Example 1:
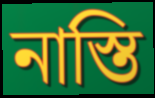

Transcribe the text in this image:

নাস্তি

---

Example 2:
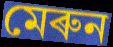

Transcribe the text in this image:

মেৰুন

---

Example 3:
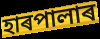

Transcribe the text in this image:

হাৰপালাৰ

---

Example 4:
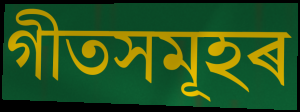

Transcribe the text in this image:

গীতসমূহৰ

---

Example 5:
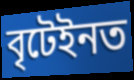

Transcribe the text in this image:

বৃটেইনত